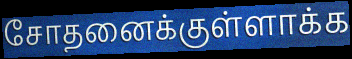
சோதனைக்குள்ளாக்க